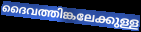
ദൈവത്തിങ്കലേക്കുള്ള